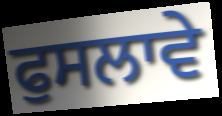
ਫੁਸਲਾਵੇ